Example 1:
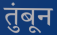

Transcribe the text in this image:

तुंबून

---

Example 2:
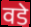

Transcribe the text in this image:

वडे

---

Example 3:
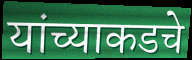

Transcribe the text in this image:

यांच्याकडचे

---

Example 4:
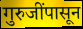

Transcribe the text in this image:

गुरुजींपासून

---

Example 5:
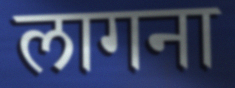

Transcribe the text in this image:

लागना